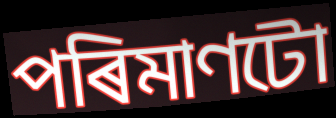
পৰিমাণটো